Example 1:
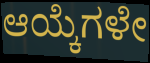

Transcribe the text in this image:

ಆಯ್ಕೆಗಳೇ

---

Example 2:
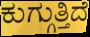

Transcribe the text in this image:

ಕುಗ್ಗುತ್ತಿದೆ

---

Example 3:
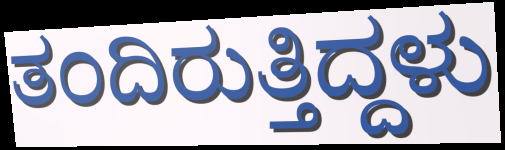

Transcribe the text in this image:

ತಂದಿರುತ್ತಿದ್ದಳು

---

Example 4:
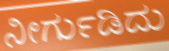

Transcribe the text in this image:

ನೀರ್ಗುಡಿದು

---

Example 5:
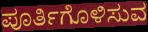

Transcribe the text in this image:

ಪೂರ್ತಿಗೊಳಿಸುವ